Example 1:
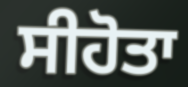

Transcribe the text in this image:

ਸੀਹੋਤਾ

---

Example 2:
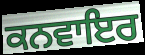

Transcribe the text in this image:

ਕਨਵਾਇਰ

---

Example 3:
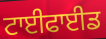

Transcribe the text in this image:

ਟਾਈਫਾਈਡ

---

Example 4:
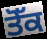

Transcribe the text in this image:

ਤੋੱਕ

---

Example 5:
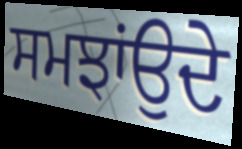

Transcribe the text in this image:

ਸਮਝਾਂਉਦੇ